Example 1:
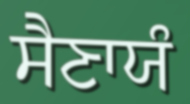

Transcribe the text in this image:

ਸੈਣਾਯੰ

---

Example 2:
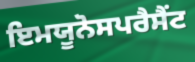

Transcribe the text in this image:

ਇਮਯੂਨੋਸਪਰੈਸੈਂਟ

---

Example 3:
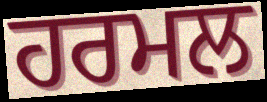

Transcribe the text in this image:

ਹਰਮਲ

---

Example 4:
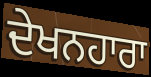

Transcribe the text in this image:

ਦੇਖਨਹਾਰਾ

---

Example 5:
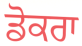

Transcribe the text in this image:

ਡੋਕਰਾ